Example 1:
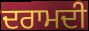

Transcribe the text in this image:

ਦਰਾਮਦੀ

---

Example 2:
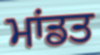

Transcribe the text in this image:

ਮਾਂਡਤ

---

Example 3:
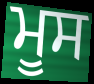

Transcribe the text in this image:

ਮੂਸ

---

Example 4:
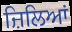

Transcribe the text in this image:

ਜ਼ਿਲਿਆਂ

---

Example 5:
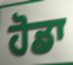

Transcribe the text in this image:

ਹੋਡਾ